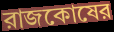
রাজকোষের